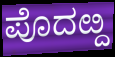
ಪೊದೞ್ದ